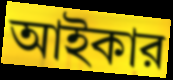
আইকার